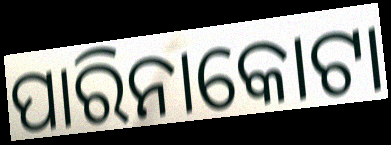
ପାରିନାକୋଟା